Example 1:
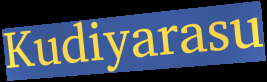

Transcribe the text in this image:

Kudiyarasu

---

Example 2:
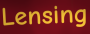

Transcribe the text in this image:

Lensing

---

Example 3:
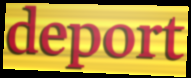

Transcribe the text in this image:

deport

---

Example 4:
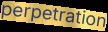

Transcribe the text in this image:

perpetration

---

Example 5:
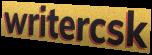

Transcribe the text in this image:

writercsk